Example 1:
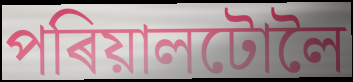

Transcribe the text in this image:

পৰিয়ালটোলৈ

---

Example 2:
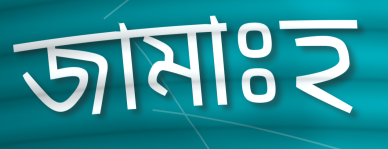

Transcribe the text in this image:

জামাঃহ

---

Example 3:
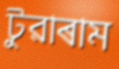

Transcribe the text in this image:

টুৱাৰাম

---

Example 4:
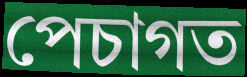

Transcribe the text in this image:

পেচাগত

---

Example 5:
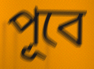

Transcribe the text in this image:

পূবে